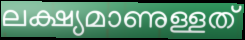
ലക്ഷ്യമാണുള്ളത്